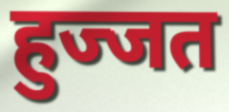
हुज्जत